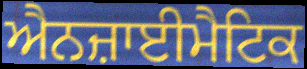
ਐਨਜ਼ਾਈਮੈਟਿਕ